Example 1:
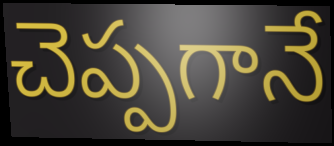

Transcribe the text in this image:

చెప్పగానే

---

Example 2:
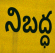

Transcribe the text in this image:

నిబద్ధ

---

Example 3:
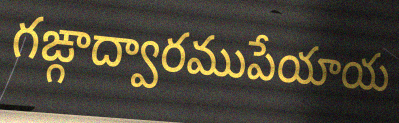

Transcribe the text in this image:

గఙ్గాద్వారముపేయాయ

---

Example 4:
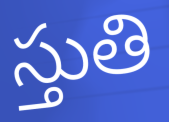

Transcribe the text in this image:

స్తుతి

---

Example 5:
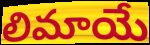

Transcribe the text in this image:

లిమాయే